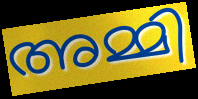
അമ്മി